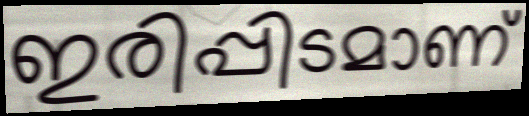
ഇരിപ്പിടമാണ്